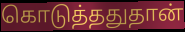
கொடுத்ததுதான்